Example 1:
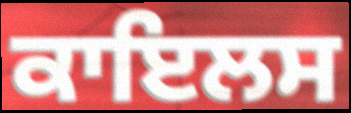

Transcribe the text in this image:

ਕਾਇਲਸ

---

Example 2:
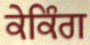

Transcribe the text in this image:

ਕੇਕਿੰਗ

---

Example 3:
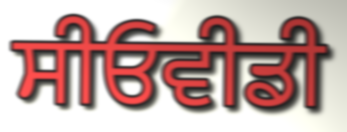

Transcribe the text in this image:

ਸੀਓਵੀਡੀ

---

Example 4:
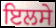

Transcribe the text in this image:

ਇਲਸੇ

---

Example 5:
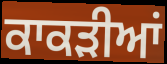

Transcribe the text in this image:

ਕਾਕੜੀਆਂ